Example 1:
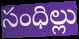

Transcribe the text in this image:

సంధిల్లు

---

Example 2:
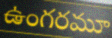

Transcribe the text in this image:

ఉంగరమూ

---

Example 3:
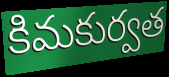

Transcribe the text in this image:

కిమకుర్వత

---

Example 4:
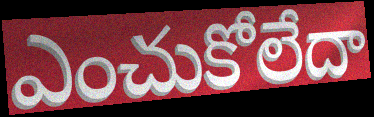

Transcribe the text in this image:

ఎంచుకోలేదా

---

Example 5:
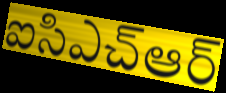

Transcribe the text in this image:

ఐసిఎచ్ఆర్